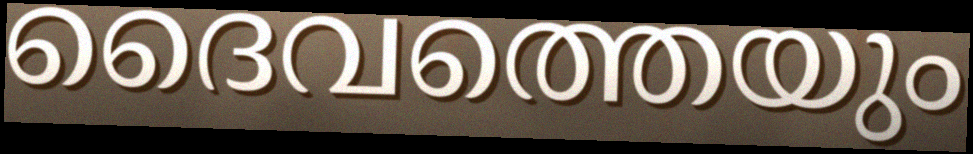
ദൈവത്തെയും